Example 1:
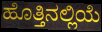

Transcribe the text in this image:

ಹೊತ್ತಿನಲ್ಲಿಯೆ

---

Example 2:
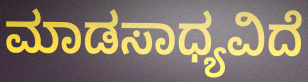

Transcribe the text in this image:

ಮಾಡಸಾಧ್ಯವಿದೆ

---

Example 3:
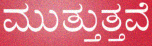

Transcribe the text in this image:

ಮುತ್ತುತ್ತವೆ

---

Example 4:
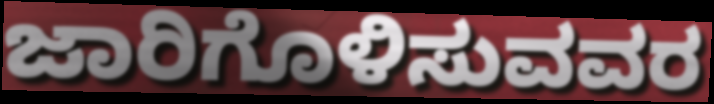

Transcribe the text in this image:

ಜಾರಿಗೊಳಿಸುವವರ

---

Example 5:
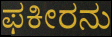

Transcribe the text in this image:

ಫಕೀರನು